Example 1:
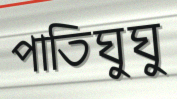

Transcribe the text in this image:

পাতিঘুঘু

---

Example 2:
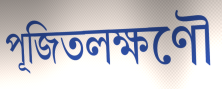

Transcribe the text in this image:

পূজিতলক্ষণৌ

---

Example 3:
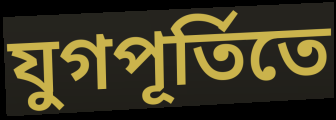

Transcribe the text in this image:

যুগপূর্তিতে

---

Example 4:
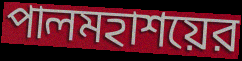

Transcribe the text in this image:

পালমহাশয়ের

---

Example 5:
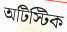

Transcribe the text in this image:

অটিস্টিক